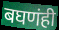
बघणंही